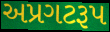
અપ્રગટરૂપ